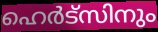
ഹെർട്സിനും